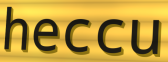
heccu